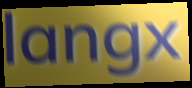
langx